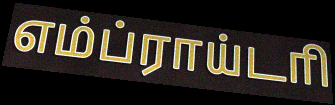
எம்ப்ராய்டரி